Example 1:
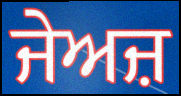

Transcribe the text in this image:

ਜੇਅਜ਼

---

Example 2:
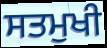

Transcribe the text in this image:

ਸਤਮੁਖੀ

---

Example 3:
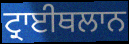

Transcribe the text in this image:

ਟ੍ਰਾਈਥਲਾਨ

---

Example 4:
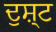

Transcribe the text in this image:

ਦੁਸ਼੍ਟ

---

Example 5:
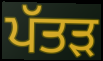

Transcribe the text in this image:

ਪੱਤਡ਼